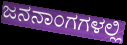
ಜನನಾಂಗಗಳಲ್ಲಿ